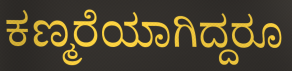
ಕಣ್ಮರೆಯಾಗಿದ್ದರೂ